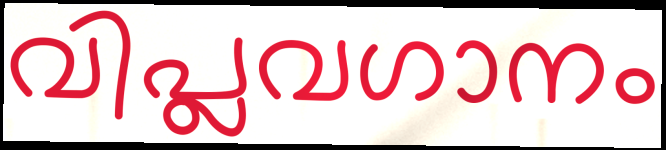
വിപ്ലവഗാനം